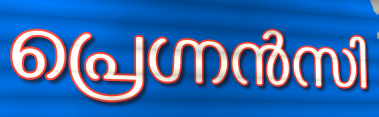
പ്രെഗ്നൻസി